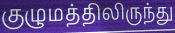
குழுமத்திலிருந்து